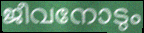
ജീവനോടും